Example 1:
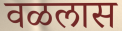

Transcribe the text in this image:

वळलास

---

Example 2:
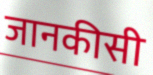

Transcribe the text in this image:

जानकीसी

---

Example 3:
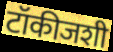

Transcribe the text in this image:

टॉकीजशी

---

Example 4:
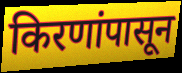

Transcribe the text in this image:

किरणांपासून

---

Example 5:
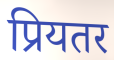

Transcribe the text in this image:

प्रियतर